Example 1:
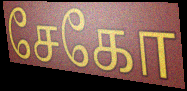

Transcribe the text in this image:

சேகோ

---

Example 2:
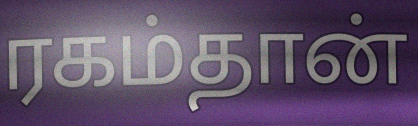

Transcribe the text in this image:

ரகம்தான்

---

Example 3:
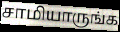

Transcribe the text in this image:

சாமியாருங்க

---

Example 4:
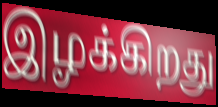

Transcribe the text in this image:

இழக்கிறது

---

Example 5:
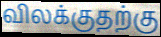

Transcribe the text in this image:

விலக்குதற்கு